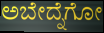
ಅಬೇದ್ನೆಗೋ